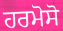
ਹਰਮੋਸੋ